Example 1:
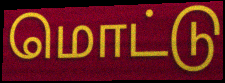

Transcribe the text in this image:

மொட்டு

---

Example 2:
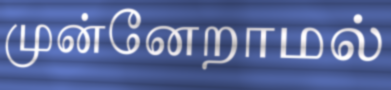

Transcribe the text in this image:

முன்னேறாமல்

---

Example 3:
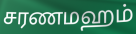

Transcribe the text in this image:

சரணமஹம்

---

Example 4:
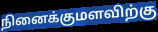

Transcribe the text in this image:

நினைக்குமளவிற்கு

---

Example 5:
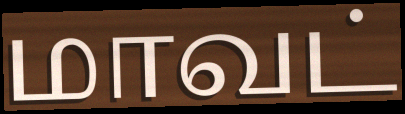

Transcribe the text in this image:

மாவட்